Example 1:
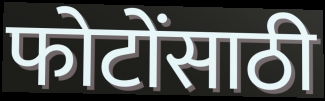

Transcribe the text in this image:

फोटोंसाठी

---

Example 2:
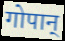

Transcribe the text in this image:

गोपान्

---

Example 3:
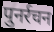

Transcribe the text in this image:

पुनर्रचन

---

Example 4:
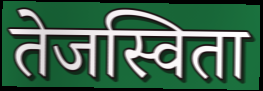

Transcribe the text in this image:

तेजस्विता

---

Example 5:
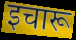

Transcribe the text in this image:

इचारू